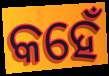
କହେଁ